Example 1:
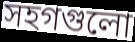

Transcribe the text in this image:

সহগগুলো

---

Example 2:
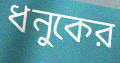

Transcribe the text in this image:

ধনুকের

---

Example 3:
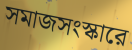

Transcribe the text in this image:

সমাজসংস্কারে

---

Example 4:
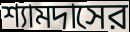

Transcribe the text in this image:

শ্যামদাসের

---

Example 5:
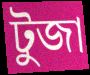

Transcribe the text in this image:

টুজা